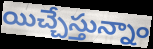
యిచ్చేస్తున్నాం